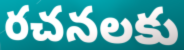
రచనలకు